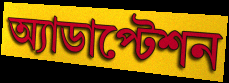
অ্যাডাপ্টেশন